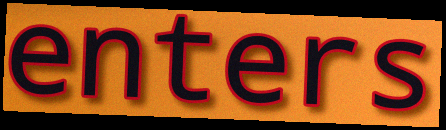
enters